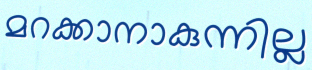
മറക്കാനാകുന്നില്ല